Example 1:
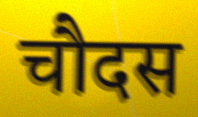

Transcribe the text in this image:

चौदस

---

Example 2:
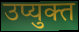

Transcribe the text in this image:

उप्युक्त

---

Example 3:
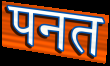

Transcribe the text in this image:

पनत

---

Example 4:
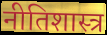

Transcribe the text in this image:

नीतिशास्त्र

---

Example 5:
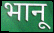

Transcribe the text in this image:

भानू